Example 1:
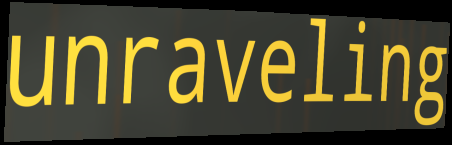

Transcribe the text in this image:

unraveling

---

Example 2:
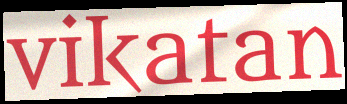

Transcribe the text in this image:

vikatan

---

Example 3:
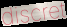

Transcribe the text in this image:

discret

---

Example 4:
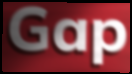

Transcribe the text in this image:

Gap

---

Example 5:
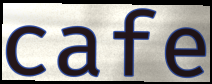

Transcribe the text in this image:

cafe